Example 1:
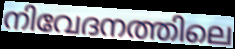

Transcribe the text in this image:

നിവേദനത്തിലെ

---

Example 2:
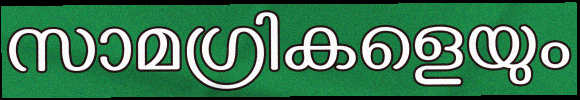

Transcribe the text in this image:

സാമഗ്രികളെയും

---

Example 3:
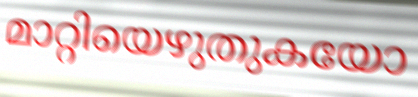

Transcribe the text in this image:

മാറ്റിയെഴുതുകയോ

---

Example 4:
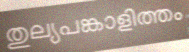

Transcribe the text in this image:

തുല്യപങ്കാളിത്തം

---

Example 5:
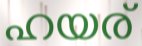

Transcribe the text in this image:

ഹയര്